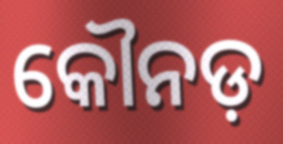
କୌନଡ଼